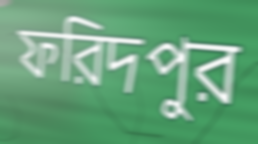
ফরিদপুর